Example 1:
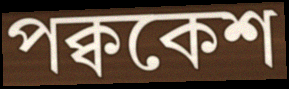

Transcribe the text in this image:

পক্বকেশ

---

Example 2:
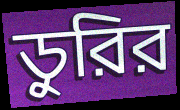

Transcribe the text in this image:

ডুরির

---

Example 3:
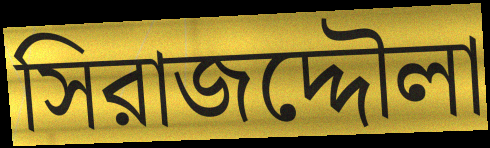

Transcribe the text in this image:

সিরাজদ্দৌলা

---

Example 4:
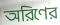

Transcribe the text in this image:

অরিণের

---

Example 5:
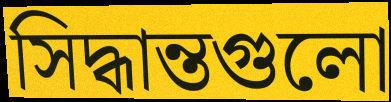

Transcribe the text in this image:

সিদ্ধান্তগুলো